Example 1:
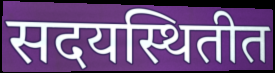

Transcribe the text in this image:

सदयस्थितीत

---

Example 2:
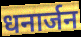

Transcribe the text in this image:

धनार्जन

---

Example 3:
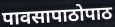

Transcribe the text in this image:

पावसापाठोपाठ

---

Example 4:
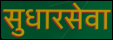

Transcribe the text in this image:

सुधारसेवा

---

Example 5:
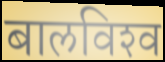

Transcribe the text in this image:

बालविश्व